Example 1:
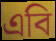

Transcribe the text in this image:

এবি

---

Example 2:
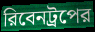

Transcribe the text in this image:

রিবেনট্রপের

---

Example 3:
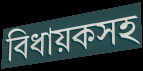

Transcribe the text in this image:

বিধায়কসহ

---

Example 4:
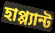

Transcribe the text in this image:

হাপ্প্যান্ট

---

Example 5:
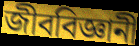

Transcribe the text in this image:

জীববিজ্ঞানী